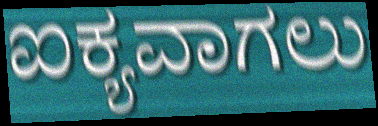
ಐಕ್ಯವಾಗಲು